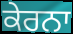
ਕੇਰਨਾ